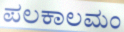
ಪಲಕಾಲಮಂ